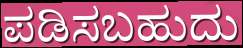
ಪಡಿಸಬಹುದು